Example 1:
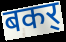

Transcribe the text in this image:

बकर्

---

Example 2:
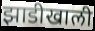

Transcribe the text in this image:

झाडीखाली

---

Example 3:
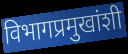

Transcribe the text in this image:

विभागप्रमुखांशी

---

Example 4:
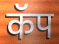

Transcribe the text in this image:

कॅप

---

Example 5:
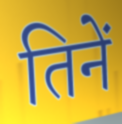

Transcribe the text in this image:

तिनें